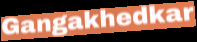
Gangakhedkar